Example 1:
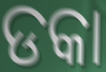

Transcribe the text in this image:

ଡକା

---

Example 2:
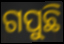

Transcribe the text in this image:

ଗପୁଛି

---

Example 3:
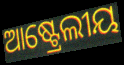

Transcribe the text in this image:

ଆଷ୍ଟ୍ରେଲୀୟ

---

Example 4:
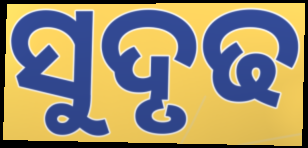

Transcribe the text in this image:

ସୁଦୃଢ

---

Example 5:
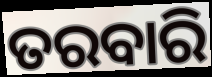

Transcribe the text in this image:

ତରବାରି